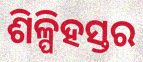
ଶିଳ୍ପିହସ୍ତର